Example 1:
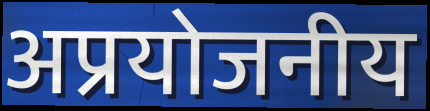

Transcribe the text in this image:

अप्रयोजनीय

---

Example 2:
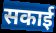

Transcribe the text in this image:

सकाई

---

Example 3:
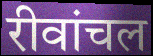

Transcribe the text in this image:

रीवांचल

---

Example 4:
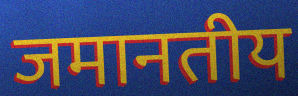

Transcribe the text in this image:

जमानतीय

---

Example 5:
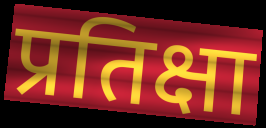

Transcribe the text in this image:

प्रतिक्षा